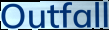
Outfall